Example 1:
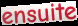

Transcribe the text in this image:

ensuite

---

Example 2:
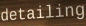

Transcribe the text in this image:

detailing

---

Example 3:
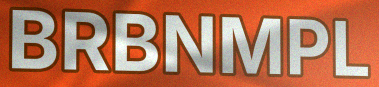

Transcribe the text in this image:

BRBNMPL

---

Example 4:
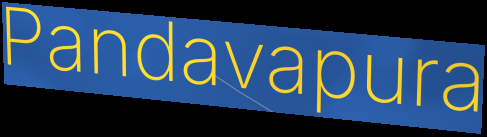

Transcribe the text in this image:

Pandavapura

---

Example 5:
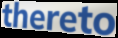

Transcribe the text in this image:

thereto